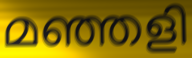
മഞ്ഞളി